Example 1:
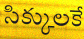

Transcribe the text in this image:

సిక్కులకే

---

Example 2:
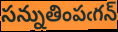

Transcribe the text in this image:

సన్నుతింపఁగన్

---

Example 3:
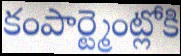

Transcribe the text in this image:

కంపార్ట్మెంట్లోకి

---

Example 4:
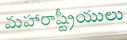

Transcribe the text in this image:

మహారాష్ట్రీయులు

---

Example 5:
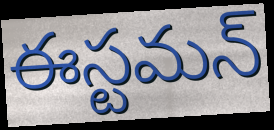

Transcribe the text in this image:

ఈస్టమన్